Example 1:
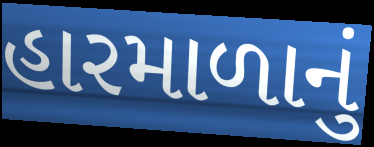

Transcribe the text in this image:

હારમાળાનું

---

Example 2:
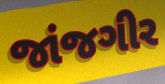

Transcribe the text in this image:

જાંજગીર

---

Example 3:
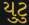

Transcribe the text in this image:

યુટુ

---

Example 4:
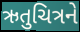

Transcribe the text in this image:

ઋતુચિત્રને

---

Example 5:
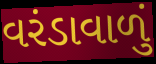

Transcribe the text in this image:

વરંડાવાળું